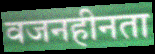
वजनहीनता